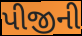
પીજીની